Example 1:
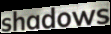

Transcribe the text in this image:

shadows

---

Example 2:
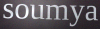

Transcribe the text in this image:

soumya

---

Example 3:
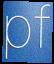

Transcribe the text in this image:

pf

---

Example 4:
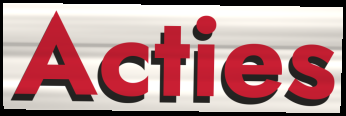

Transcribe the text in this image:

Acties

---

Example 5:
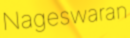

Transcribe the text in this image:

Nageswaran